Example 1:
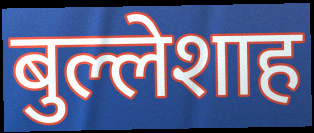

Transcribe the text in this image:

बुल्लेशाह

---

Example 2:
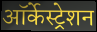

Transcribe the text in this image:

ऑर्केस्ट्रेशन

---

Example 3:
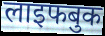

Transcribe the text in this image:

लाइफबुक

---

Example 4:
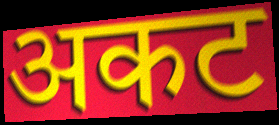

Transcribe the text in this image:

अकट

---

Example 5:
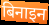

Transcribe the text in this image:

बिनाइन